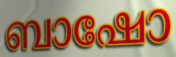
ബാഷോ